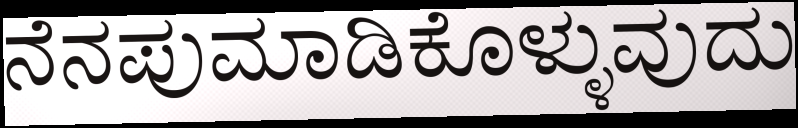
ನೆನಪುಮಾಡಿಕೊಳ್ಳುವುದು